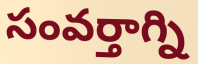
సంవర్తాగ్ని